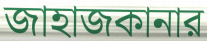
জাহাজকানার